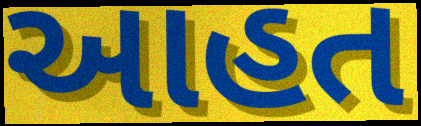
આહત